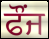
ਫੌਂਜ